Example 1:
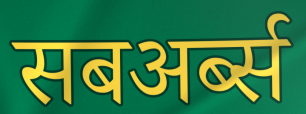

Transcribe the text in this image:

सबअर्ब्स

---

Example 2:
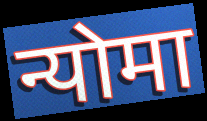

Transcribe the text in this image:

न्योमा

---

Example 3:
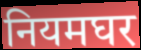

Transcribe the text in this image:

नियमघर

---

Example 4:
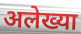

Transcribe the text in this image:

अलेख्या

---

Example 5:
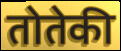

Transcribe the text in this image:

तोतेकी